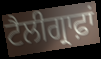
ਟੈਲੀਗ੍ਰਾਫ਼ਾਂ